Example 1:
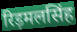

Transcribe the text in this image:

रिड़मलसिंह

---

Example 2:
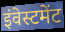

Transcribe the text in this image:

इंवेस्टमेंट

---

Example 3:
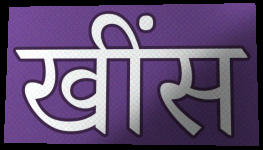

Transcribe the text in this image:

खींस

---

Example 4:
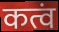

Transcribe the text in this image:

कत्वं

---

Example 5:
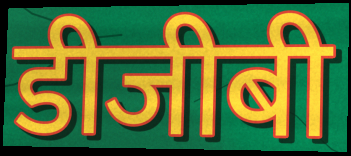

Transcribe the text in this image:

डीजीबी